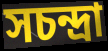
সচন্দ্রা